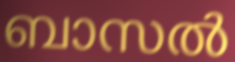
ബാസൽ